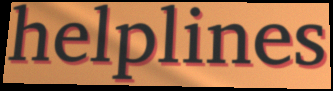
helplines